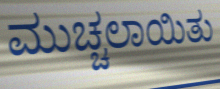
ಮುಚ್ಚಲಾಯಿತು